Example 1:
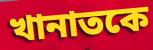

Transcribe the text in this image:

খানাতকে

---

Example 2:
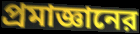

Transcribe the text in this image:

প্রমাজ্ঞানের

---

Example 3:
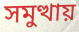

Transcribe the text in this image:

সমুত্থায়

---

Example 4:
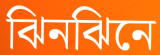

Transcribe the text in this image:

ঝিনঝিনে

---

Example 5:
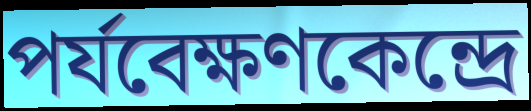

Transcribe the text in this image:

পর্যবেক্ষণকেন্দ্রে